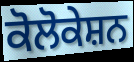
ਕੋਲੋਕੇਸ਼ਨ